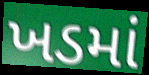
ખડમાં